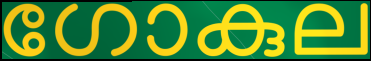
ഗോകുല